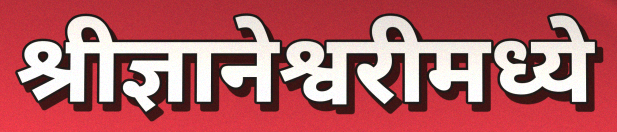
श्रीज्ञानेश्वरीमध्ये